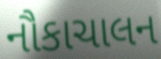
નૌકાચાલન